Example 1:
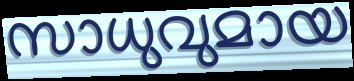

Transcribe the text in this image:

സാധുവുമായ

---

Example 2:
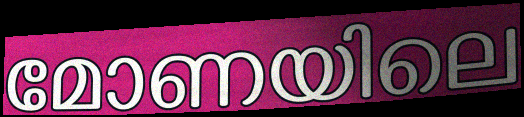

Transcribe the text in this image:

മോണയിലെ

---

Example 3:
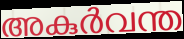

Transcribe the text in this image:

അകുർവന്ത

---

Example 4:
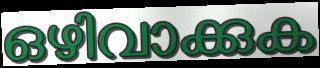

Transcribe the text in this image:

ഒഴിവാക്കുക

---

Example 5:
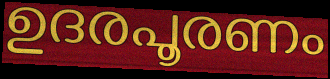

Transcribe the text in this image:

ഉദരപൂരണം